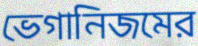
ভেগানিজমের